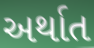
અર્થાત